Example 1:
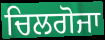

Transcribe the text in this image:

ਚਿਲਗੋਜਾ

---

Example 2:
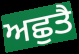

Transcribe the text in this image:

ਅਛੁਤੈ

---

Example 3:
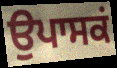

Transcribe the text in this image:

ਉਪਾਸਕਂ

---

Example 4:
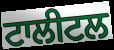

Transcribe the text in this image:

ਟਾਲੀਟਲ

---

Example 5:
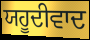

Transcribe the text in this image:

ਯਹੂਦੀਵਾਦ